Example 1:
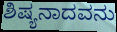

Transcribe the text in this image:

ಶಿಷ್ಯನಾದವನು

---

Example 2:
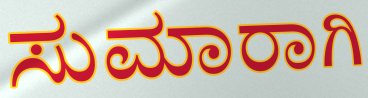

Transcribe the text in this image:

ಸುಮಾರಾಗಿ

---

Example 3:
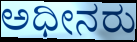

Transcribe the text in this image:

ಅಧೀನರು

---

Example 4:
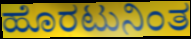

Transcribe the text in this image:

ಹೊರಟುನಿಂತ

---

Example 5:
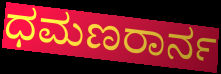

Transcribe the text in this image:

ಧಮಣರಾರ್ನ